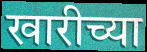
खारीच्या